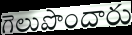
గెలుపొందారు